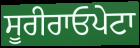
ਸੂਰੀਰਾਓਪੇਟਾ